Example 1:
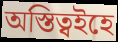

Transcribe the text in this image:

অস্তিত্বইহে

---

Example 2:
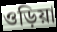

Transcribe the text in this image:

ওড়িয়া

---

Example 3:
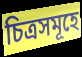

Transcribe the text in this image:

চিত্ৰসমূহে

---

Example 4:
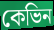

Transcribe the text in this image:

কেভিন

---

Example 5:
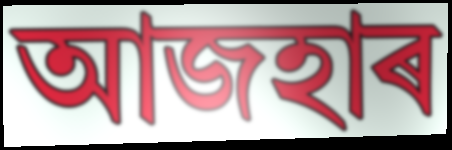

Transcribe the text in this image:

আজহাৰ